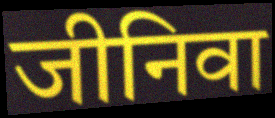
जीनिवा